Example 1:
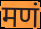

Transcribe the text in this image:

मणं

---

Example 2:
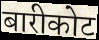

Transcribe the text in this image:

बारीकोट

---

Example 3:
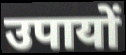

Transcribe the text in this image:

उपायों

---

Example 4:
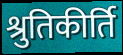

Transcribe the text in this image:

श्रुतिकीर्ति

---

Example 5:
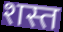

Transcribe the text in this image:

शस्त